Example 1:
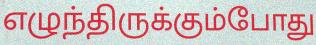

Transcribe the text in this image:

எழுந்திருக்கும்போது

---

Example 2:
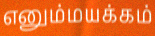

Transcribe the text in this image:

எனும்மயக்கம்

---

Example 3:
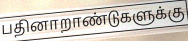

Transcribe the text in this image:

பதினாறாண்டுகளுக்கு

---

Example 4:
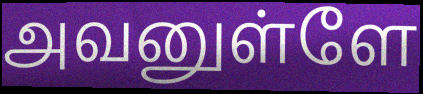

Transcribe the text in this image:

அவனுள்ளே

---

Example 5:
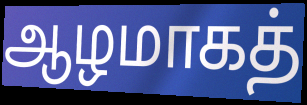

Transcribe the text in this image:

ஆழமாகத்